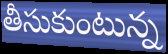
తీసుకుంటున్న